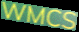
WMCS